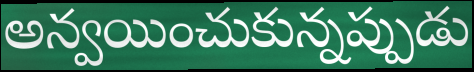
అన్వయించుకున్నప్పుడు